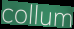
collum